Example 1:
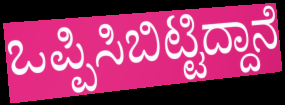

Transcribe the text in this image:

ಒಪ್ಪಿಸಿಬಿಟ್ಟಿದ್ದಾನೆ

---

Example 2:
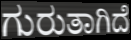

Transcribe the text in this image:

ಗುರುತಾಗಿದೆ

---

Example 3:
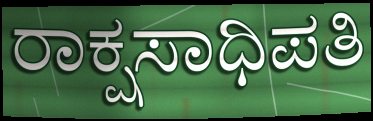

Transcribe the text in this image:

ರಾಕ್ಷಸಾಧಿಪತಿ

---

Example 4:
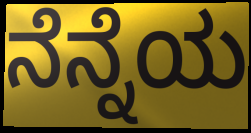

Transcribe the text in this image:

ನೆನ್ನೆಯ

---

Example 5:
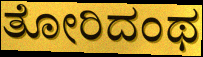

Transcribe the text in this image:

ತೋರಿದಂಥ